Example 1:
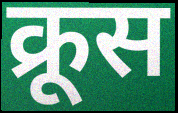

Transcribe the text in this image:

क्रूस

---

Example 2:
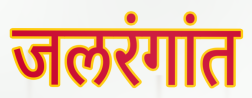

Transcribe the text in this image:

जलरंगांत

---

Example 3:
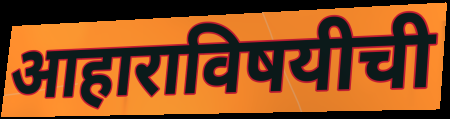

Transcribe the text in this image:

आहाराविषयीची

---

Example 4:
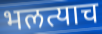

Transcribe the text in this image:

भलत्याच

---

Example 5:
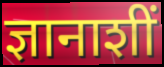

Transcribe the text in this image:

ज्ञानाशीं